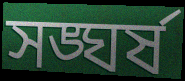
সঙ্ঘর্ষ